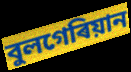
বুলগেৰিয়ান